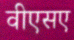
वीएसए